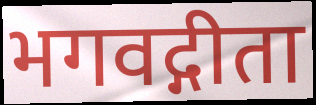
भगवद्गीता